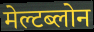
मेल्टब्लोन